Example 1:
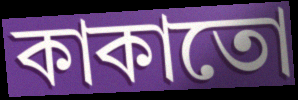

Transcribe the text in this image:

কাকাতো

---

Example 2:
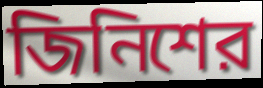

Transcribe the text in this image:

জিনিশের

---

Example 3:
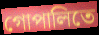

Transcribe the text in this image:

গোপালিতে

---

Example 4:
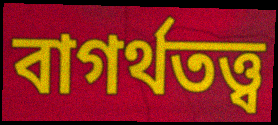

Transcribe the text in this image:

বাগর্থতত্ত্ব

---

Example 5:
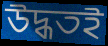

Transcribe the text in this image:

উদ্ধতই